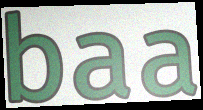
baa